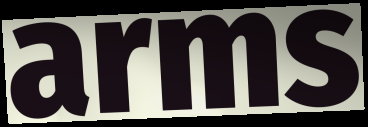
arms